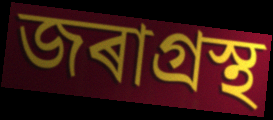
জৰাগ্ৰস্থ